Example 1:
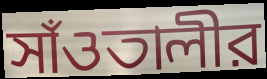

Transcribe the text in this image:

সাঁওতালীর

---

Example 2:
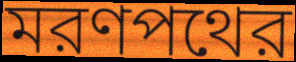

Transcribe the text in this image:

মরণপথের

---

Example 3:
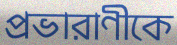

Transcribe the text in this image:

প্রভারাণীকে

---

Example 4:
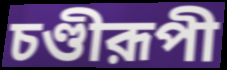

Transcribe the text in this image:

চণ্ডীরূপী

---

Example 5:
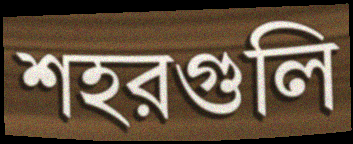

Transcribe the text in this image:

শহরগুলি